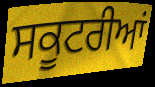
ਸਕੂਟਰੀਆਂ